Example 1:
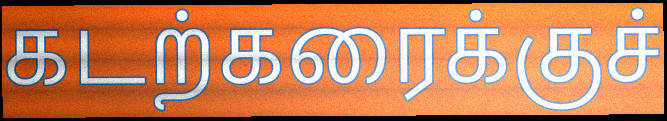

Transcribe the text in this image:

கடற்கரைக்குச்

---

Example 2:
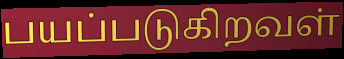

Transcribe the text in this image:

பயப்படுகிறவள்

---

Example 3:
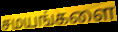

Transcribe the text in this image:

சமயங்களை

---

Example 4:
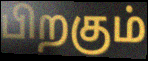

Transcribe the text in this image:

பிறகும்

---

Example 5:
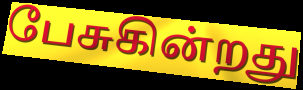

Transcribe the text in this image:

பேசுகின்றது